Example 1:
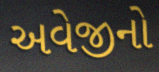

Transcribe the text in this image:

અવેજીનો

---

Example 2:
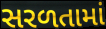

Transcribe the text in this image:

સરળતામાં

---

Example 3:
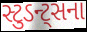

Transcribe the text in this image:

સ્ટુડન્ટ્સના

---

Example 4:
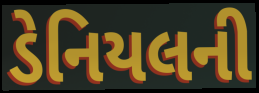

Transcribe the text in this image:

ડેનિયલની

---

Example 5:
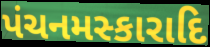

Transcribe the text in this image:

પંચનમસ્કારાદિ